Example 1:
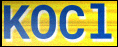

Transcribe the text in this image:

KOCl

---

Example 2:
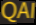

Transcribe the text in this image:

QAI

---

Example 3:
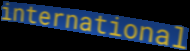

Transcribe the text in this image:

international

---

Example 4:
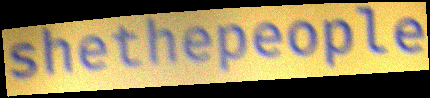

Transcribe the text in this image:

shethepeople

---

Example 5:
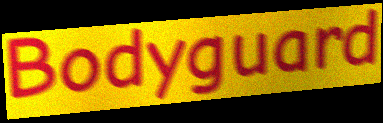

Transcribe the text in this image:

Bodyguard